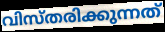
വിസ്തരിക്കുന്നത്